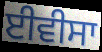
ਈਵੀਸਾ